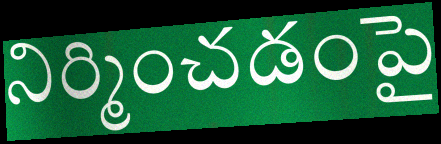
నిర్మించడంపై